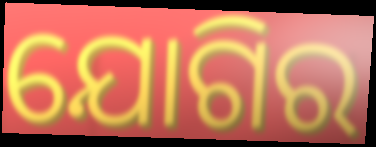
ଯୋଗିର